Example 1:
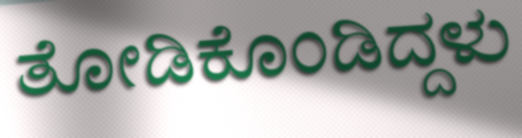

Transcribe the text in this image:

ತೋಡಿಕೊಂಡಿದ್ದಳು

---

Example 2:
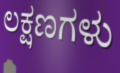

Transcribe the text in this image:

ಲಕ್ಷಣಗಳು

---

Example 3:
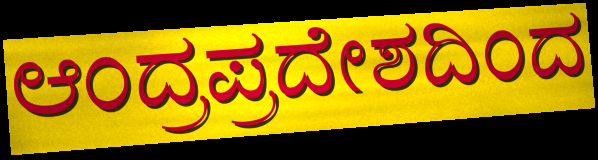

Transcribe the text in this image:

ಆಂದ್ರಪ್ರದೇಶದಿಂದ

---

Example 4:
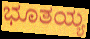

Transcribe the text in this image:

ಭೂತಯ್ಯ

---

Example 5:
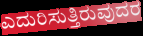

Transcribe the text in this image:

ಎದುರಿಸುತ್ತಿರುವುದರ